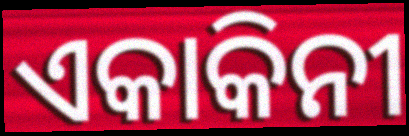
ଏକାକିନୀ